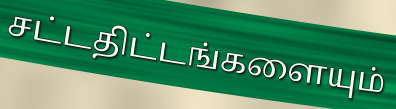
சட்டதிட்டங்களையும்